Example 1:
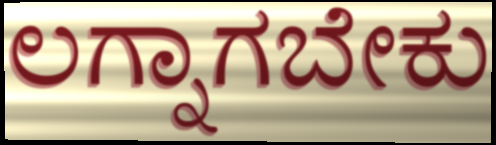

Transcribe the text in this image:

ಲಗ್ನಾಗಬೇಕು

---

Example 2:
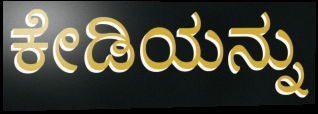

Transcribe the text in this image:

ಕೇಡಿಯನ್ನು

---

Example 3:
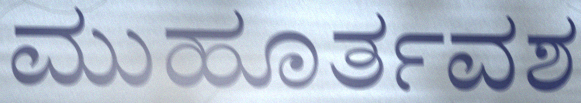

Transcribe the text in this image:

ಮುಹೂರ್ತವಶ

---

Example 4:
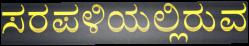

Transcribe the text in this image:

ಸರಪಳಿಯಲ್ಲಿರುವ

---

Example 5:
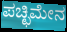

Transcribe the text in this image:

ಪಚ್ಛಿಮೇನ